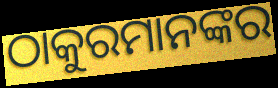
ଠାକୁରମାନଙ୍କର